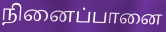
நினைப்பானை